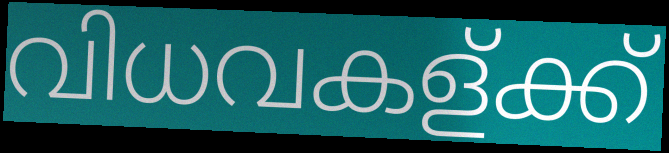
വിധവകള്ക്ക്